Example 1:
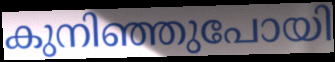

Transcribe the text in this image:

കുനിഞ്ഞുപോയി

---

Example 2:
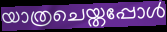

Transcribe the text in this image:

യാത്രചെയ്തപ്പോൾ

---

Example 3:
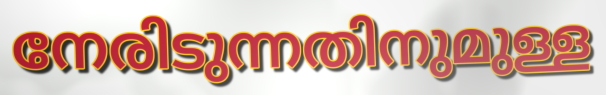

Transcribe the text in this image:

നേരിടുന്നതിനുമുള്ള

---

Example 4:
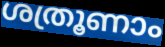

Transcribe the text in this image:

ശത്രൂണാം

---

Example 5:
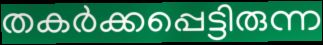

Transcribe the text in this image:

തകർക്കപ്പെട്ടിരുന്ന